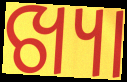
ଖ୍ୟା